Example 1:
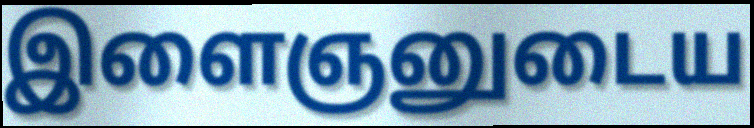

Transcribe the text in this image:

இளைஞனுடைய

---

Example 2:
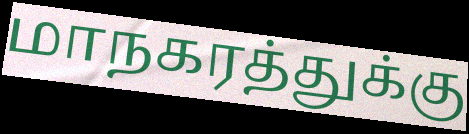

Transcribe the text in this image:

மாநகரத்துக்கு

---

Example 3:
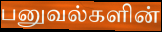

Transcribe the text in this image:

பனுவல்களின்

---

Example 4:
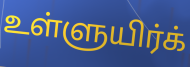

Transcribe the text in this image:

உள்ளுயிர்க்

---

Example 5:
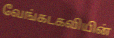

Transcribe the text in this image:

வேங்கடகவியின்